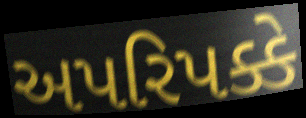
અપરિપક્કે